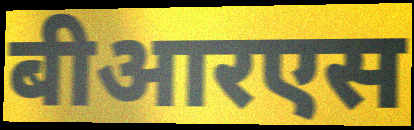
बीआरएस